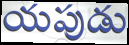
యపుడు